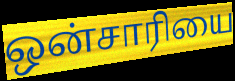
ஒன்சாரியை